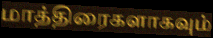
மாத்திரைகளாகவும்